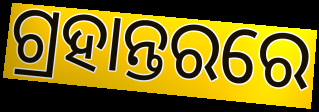
ଗ୍ରହାନ୍ତରରେ